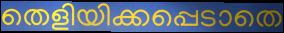
തെളിയിക്കപ്പെടാതെ